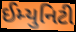
ઈમ્યુનિટી